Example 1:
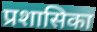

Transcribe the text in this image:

प्रशासिका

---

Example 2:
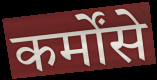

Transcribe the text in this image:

कर्मोंसे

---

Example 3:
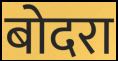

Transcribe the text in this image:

बोदरा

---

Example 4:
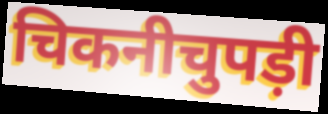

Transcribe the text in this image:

चिकनीचुपड़ी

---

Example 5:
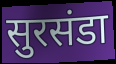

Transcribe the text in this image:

सुरसंडा